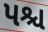
પશ્ચ